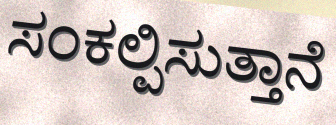
ಸಂಕಲ್ಪಿಸುತ್ತಾನೆ